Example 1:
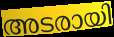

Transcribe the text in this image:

അടരായി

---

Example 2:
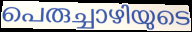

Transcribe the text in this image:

പെരുച്ചാഴിയുടെ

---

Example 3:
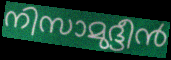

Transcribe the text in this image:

നിസാമുദ്ദീൻ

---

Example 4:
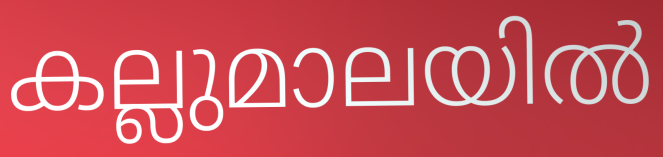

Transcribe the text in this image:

കല്ലുമാലയിൽ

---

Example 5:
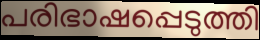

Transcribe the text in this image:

പരിഭാഷപ്പെടുത്തി